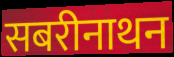
सबरीनाथन